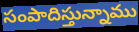
సంపాదిస్తున్నాము